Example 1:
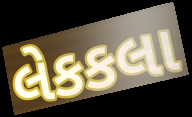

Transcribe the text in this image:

લેકકલા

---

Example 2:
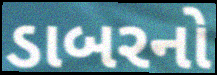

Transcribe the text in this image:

ડાબરનો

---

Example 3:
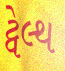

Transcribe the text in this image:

ટ્વેલ્થ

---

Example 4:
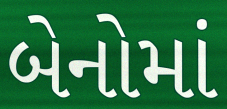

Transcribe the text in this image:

બેનોમાં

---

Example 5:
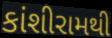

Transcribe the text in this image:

કાંશીરામથી